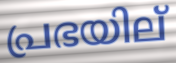
പ്രഭയില്